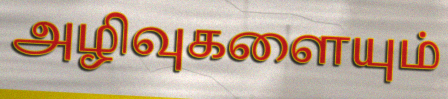
அழிவுகளையும்